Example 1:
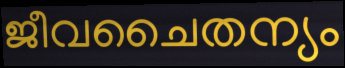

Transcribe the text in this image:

ജീവചൈതന്യം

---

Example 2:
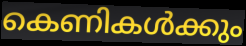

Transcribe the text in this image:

കെണികൾക്കും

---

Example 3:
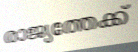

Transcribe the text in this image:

രാജ്യത്തേക്ക്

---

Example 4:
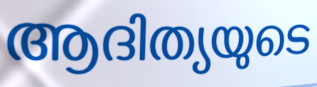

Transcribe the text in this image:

ആദിത്യയുടെ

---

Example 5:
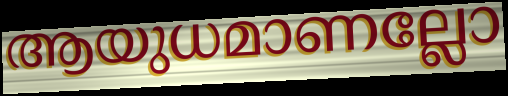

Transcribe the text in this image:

ആയുധമാണല്ലോ